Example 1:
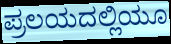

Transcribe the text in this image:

ಪ್ರಲಯದಲ್ಲಿಯೂ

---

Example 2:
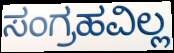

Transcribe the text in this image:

ಸಂಗ್ರಹವಿಲ್ಲ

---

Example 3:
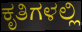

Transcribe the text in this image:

ಕೃತಿಗಳಲ್ಲಿ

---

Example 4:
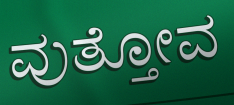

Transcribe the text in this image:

ವುತ್ತೋವ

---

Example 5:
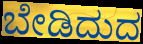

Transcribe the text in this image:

ಬೇಡಿದುದ